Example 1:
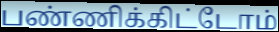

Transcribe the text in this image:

பண்ணிக்கிட்டோம்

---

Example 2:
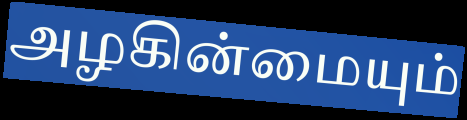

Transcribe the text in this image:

அழகின்மையும்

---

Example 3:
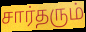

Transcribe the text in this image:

சார்தரும்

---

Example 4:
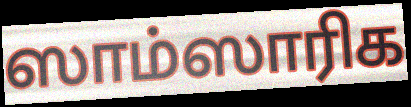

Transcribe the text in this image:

ஸாம்ஸாரிக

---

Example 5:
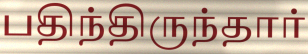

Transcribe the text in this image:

பதிந்திருந்தார்